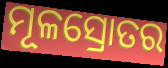
ମୂଳସ୍ରୋତର